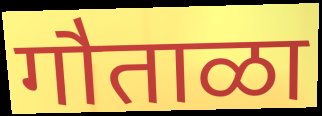
गौताळा